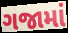
ગજામાં